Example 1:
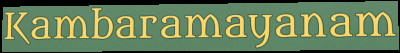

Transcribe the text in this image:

Kambaramayanam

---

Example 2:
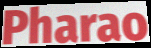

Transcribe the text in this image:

Pharao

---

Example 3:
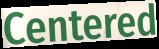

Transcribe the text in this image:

Centered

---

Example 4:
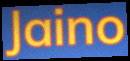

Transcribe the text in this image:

Jaino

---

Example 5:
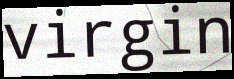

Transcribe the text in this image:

virgin